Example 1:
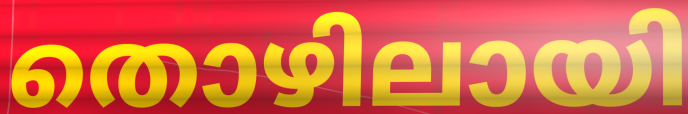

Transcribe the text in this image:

തൊഴിലായി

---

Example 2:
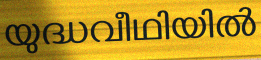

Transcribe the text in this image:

യുദ്ധവീഥിയിൽ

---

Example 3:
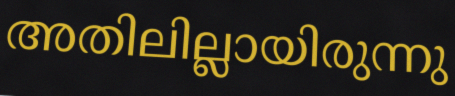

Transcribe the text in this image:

അതിലില്ലായിരുന്നു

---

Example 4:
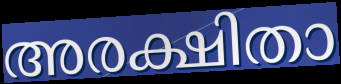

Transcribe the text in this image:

അരക്ഷിതാ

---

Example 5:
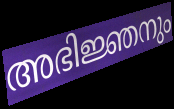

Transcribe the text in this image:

അഭിജ്ഞനും